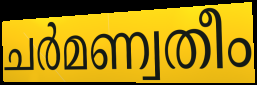
ചർമണ്വതീം